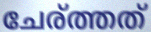
ചേര്ത്തത്